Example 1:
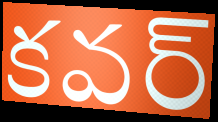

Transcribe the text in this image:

కవర్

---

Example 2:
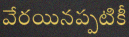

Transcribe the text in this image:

వేరయినప్పటికీ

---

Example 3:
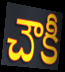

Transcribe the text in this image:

చౌకీ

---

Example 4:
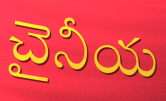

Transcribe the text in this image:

చైనీయ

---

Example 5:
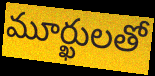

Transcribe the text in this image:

మూర్ఖులతో